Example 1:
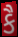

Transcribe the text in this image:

કૈ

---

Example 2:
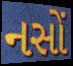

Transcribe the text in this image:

નસોં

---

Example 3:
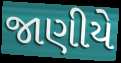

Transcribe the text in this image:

જાણીયે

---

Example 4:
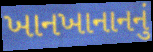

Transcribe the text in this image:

ખાનખાનાનનું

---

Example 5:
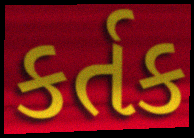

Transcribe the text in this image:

કર્તક